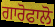
ਗਾਰੋਫਾਲੋ